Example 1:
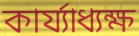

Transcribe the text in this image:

কার্য্যাধ্যক্ষ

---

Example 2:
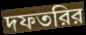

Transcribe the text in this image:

দফতরির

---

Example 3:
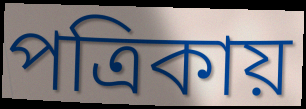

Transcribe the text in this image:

পত্রিকায়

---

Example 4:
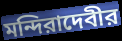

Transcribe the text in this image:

মন্দিরাদেবীর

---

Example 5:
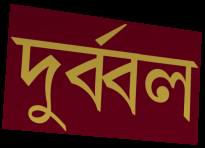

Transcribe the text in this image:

দুর্ব্বল